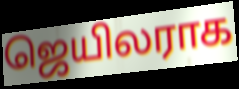
ஜெயிலராக